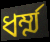
ধৰ্ম্ম